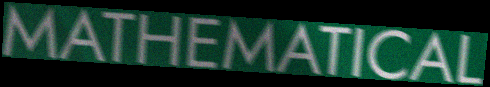
MATHEMATICAL